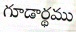
గూడార్థము